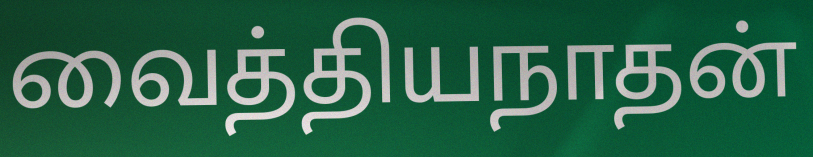
வைத்தியநாதன்